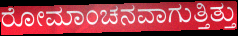
ರೋಮಾಂಚನವಾಗುತ್ತಿತ್ತು